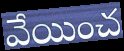
వేయించ